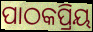
ପାଠକପ୍ରିୟ